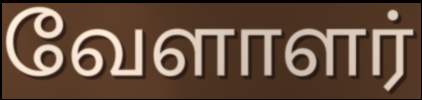
வேளாளர்